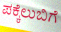
ಪಕ್ಕೆಲುಬಿಗೆ